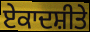
ਏਕਾਦਸ਼ੀਤੇ